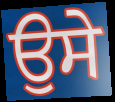
ਉਸੇ